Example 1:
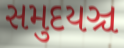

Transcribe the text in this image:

સમુદયઞ્ચ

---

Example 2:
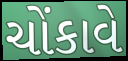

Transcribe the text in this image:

ચોંકાવે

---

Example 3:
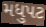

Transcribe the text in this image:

મધુપટ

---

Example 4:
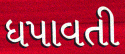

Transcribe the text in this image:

ધપાવતી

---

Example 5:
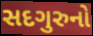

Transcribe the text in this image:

સદગુરુનો